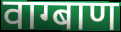
वाग्बाण